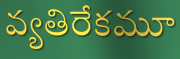
వ్యతిరేకమూ